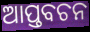
ଆପ୍ତବଚନ